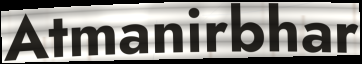
Atmanirbhar